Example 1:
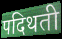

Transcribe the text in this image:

पदिथती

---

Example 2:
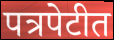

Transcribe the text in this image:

पत्रपेटीत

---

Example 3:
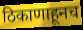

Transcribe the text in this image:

ठिकाणाहूनच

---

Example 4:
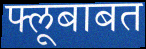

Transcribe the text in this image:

फ्लूबाबत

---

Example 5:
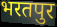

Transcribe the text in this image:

भरतपुर